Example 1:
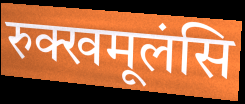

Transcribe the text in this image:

रुक्खमूलंसि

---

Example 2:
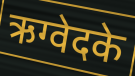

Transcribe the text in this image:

ऋग्वेदके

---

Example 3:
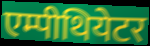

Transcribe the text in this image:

एम्पीथियेटर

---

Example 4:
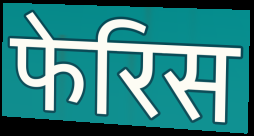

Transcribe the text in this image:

फेरिस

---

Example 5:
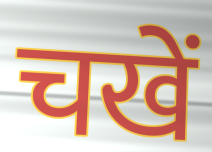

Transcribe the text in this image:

चखें